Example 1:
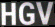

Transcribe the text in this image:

HGV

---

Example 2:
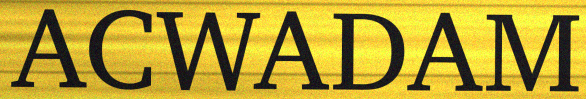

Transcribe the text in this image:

ACWADAM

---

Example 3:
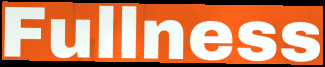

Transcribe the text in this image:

Fullness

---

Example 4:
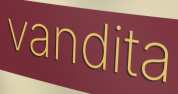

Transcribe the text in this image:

vandita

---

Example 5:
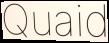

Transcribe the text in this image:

Quaid